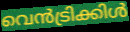
വെൻട്രിക്കിൾ